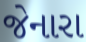
જેનારા